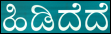
ಹಿಡಿದೆದೆ